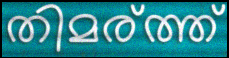
തിമര്ത്ത്